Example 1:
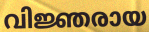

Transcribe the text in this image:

വിജ്ഞരായ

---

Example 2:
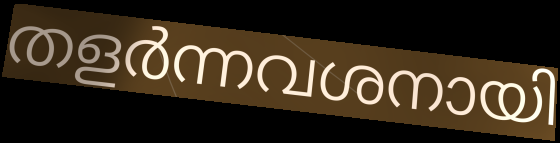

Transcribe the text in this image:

തളർന്നവശനായി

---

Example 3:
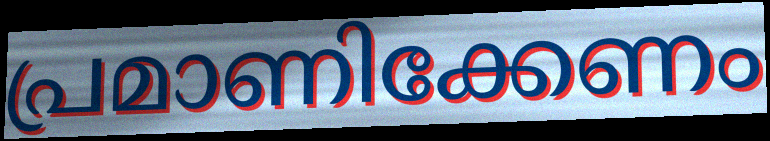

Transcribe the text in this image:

പ്രമാണിക്കേണം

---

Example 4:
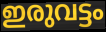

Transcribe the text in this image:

ഇരുവട്ടം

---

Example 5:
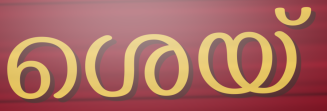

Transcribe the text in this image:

ശെയ്